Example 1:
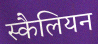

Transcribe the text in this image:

स्कैलियन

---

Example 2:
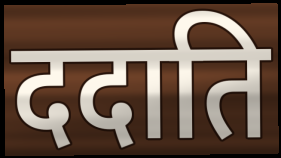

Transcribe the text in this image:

ददाति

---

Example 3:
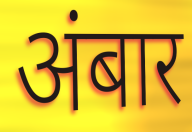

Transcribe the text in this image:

अंबार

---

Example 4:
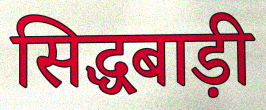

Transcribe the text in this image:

सिद्धबाड़ी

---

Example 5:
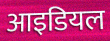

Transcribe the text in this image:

आइडियल